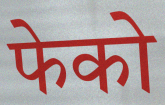
फेको